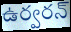
ఉర్వరన్